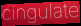
cingulate